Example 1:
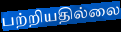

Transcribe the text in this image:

பற்றியதில்லை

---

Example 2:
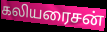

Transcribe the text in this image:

கலியரைசன்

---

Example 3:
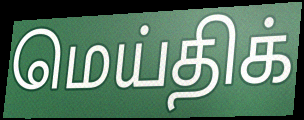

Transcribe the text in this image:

மெய்திக்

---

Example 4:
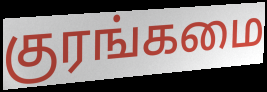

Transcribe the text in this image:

குரங்கமை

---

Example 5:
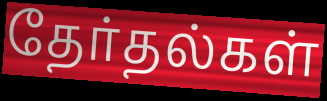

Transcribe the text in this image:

தேர்தல்கள்